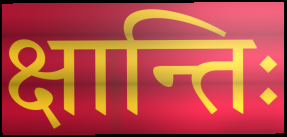
क्षान्तिः